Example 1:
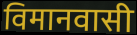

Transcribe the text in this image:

विमानवासी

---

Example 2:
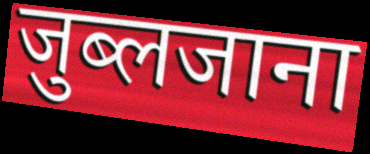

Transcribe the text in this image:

जुब्लजाना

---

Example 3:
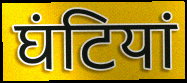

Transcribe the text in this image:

घंटियां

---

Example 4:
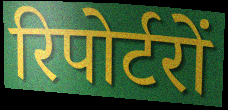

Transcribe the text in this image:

रिपोर्टरों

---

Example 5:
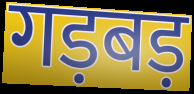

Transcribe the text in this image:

गड़बड़